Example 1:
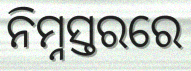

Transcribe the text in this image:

ନିମ୍ନସ୍ତରରେ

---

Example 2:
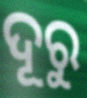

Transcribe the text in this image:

ଦୂରୁ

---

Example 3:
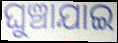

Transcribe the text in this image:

ଘୁଞ୍ଚାଯାଇ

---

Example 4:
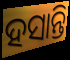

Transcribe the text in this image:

ହସାନ୍ତି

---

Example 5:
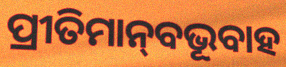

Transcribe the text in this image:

ପ୍ରୀତିମାନ୍‌ବଭୂବାହ